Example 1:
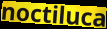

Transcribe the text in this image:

noctiluca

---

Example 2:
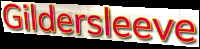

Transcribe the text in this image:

Gildersleeve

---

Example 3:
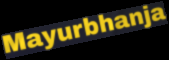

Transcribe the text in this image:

Mayurbhanja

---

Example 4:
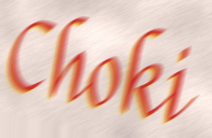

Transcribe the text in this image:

Choki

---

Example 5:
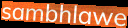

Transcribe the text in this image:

sambhlawe